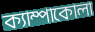
ক্যাম্পাকোলা